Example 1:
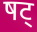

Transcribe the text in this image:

षट्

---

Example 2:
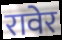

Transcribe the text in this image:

रावेर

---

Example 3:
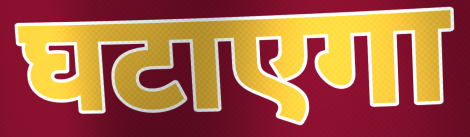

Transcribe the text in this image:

घटाएगा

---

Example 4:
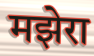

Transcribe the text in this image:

मझेरा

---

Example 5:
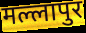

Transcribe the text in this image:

मल्लापुर